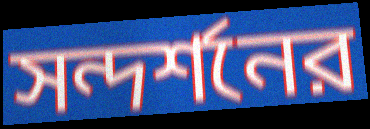
সন্দর্শনের